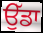
ਉੱਡਾ